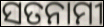
ସତନାମୀ